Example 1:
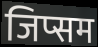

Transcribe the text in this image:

जिप्सम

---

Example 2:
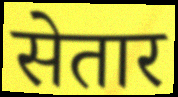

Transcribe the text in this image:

सेतार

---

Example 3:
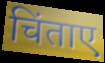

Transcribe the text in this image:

चिंताए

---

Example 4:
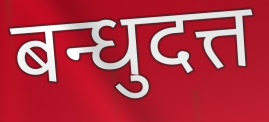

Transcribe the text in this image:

बन्धुदत्त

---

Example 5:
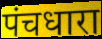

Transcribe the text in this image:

पंचधारा